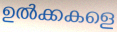
ഉൽക്കകളെ